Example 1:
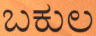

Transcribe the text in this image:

ಬಕುಲ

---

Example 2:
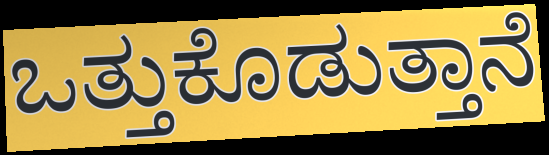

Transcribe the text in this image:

ಒತ್ತುಕೊಡುತ್ತಾನೆ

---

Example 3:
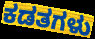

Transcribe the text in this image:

ಕಡತಗಳು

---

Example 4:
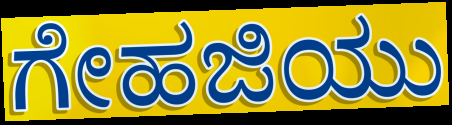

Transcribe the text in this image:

ಗೇಹಜಿಯು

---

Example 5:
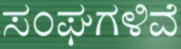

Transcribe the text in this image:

ಸಂಘಗಳಿವೆ